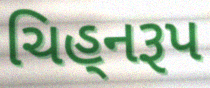
ચિહ્‌નરૂપ